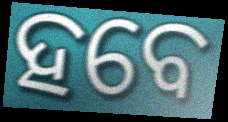
ହବେ